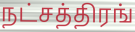
நட்சத்திரங்